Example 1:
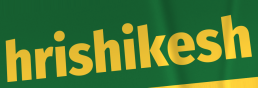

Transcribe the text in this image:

hrishikesh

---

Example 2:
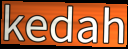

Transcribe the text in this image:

kedah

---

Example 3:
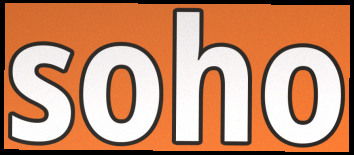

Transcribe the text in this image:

soho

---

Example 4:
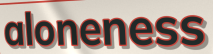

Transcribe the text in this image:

aloneness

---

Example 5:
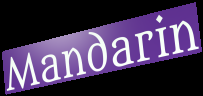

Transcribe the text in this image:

Mandarin